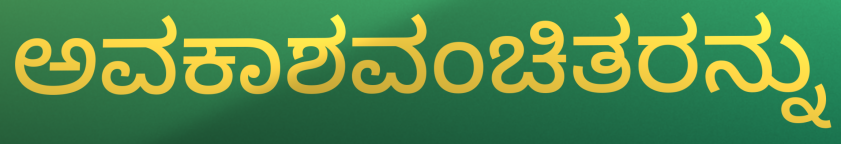
ಅವಕಾಶವಂಚಿತರನ್ನು